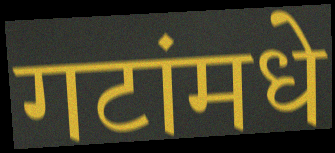
गटांमधे